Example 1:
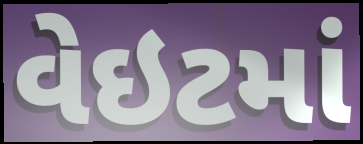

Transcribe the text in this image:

વેઇટમાં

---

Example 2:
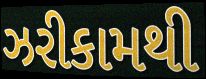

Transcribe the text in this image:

ઝરીકામથી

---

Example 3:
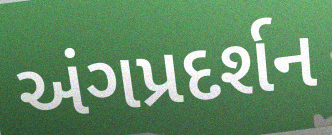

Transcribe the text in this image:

અંગપ્રદર્શન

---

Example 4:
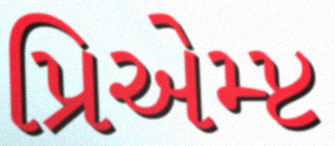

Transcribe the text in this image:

પ્રિએમ્પ્ટ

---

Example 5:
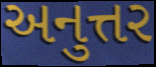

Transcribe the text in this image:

અનુત્તર